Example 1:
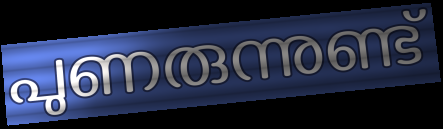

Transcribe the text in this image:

പുണരുന്നുണ്ട്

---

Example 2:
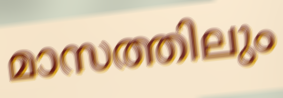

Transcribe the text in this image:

മാസത്തിലും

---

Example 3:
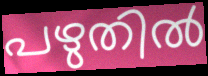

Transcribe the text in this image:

പഴുതിൽ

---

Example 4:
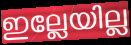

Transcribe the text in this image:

ഇല്ലേയില്ല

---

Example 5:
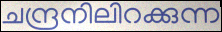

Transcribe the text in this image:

ചന്ദ്രനിലിറക്കുന്ന